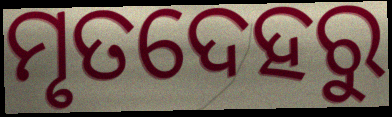
ମୃତଦେହରୁ